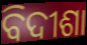
ବିଦୀଶା